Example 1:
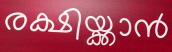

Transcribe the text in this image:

രക്ഷിയ്ക്കാൻ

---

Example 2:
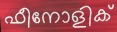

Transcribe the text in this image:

ഫീനോളിക്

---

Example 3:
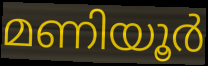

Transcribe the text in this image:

മണിയൂർ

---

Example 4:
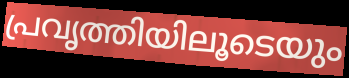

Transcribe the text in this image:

പ്രവൃത്തിയിലൂടെയും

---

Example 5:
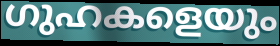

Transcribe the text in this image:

ഗുഹകളെയും